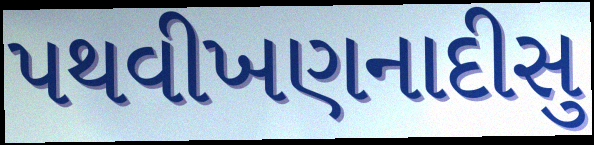
પથવીખણનાદીસુ